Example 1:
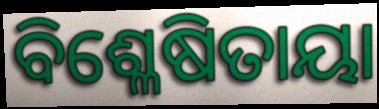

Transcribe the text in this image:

ବିଶ୍ଳେଷିତାୟା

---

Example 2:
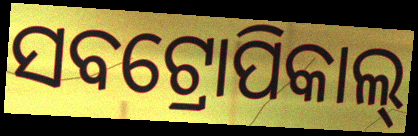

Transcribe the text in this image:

ସବଟ୍ରୋପିକାଲ୍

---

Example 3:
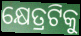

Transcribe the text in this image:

କ୍ଷେତ୍ରଟିକୁ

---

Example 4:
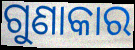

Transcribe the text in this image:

ଗୁଣାକାର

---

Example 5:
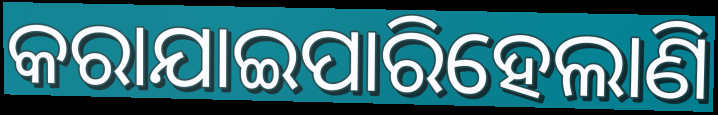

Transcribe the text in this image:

କରାଯାଇପାରିହେଲାଣି